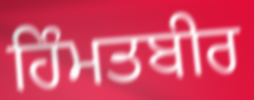
ਹਿੰਮਤਬੀਰ